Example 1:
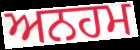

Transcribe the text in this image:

ਅਨਹਮ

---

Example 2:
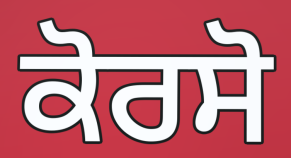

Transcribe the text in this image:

ਕੋਰਸੋ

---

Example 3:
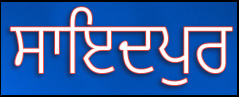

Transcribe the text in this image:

ਸਾਇਦਪੁਰ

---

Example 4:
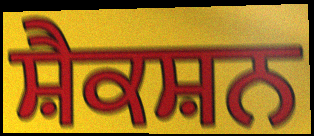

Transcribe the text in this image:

ਸ਼ੈਕਸ਼ਨ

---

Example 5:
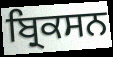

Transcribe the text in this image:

ਬ੍ਰਿਕਸਨ